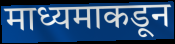
माध्यमाकडून